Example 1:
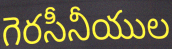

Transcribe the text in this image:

గెరసీనీయుల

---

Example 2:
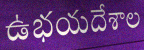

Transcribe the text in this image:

ఉభయదేశాల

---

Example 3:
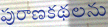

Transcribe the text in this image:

పురాణకథలను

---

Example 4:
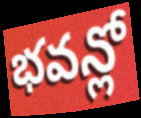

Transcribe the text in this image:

భవన్లో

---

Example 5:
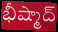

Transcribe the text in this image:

భీష్మాద్